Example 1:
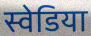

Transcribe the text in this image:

स्वेडिया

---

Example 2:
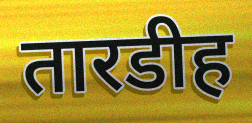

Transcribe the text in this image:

तारडीह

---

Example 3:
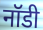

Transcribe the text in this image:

नॉडी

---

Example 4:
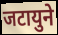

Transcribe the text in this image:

जटायुने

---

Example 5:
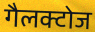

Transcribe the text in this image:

गैलक्टोज